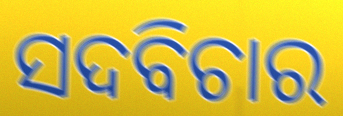
ସଦବିଚାର